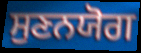
ਸੁਣਨਯੋਗ